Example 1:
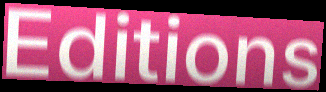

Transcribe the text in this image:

Editions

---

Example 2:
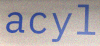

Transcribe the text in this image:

acyl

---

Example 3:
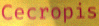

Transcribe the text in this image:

Cecropis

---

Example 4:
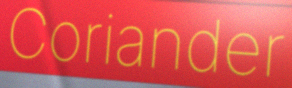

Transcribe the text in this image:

Coriander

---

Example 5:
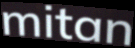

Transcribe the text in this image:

mitan